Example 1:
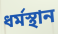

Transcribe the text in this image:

ধর্মস্থান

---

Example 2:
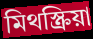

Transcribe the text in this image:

মিথস্ক্রিয়া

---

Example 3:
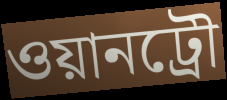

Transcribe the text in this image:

ওয়ানট্রৌ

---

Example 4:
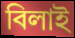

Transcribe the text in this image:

বিলাই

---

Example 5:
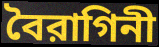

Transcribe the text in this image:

বৈরাগিনী